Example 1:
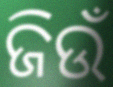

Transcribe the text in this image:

ଜିଉଁ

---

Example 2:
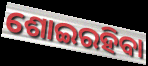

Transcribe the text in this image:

ଶୋଇରହିବା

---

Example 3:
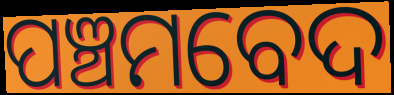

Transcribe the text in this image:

ପଞ୍ଚମବେଦ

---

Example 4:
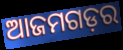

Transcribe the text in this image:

ଆଜମଗଡ଼ର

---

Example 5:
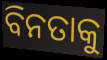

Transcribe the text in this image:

ବିନତାକୁ